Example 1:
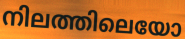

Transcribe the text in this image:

നിലത്തിലെയോ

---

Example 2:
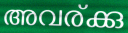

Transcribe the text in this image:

അവര്ക്കു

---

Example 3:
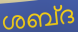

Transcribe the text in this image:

ശബ്‌ദ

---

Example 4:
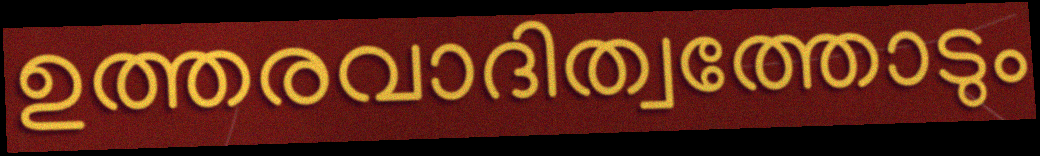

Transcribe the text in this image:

ഉത്തരവാദിത്വത്തോടും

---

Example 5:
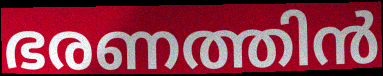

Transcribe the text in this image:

ഭരണത്തിൻ